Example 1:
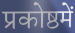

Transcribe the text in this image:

प्रकोष्ठमें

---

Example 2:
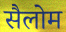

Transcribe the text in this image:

सैलोम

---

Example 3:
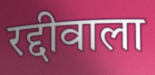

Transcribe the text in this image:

रद्दीवाला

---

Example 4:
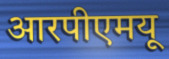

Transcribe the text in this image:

आरपीएमयू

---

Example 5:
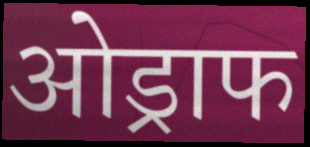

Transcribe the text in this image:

ओड्राफ